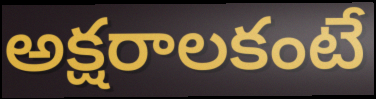
అక్షరాలకంటే